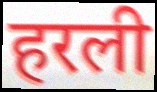
हरली